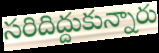
సరిదిద్దుకున్నారు